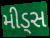
મીડ્સ